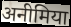
अनीमिया